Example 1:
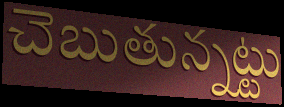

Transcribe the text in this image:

చెబుతున్నట్టు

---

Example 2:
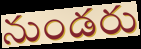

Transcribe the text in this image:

నుండరు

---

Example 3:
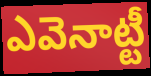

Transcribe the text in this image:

ఎవెనాట్టీ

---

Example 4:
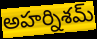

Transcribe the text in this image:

అహర్నిశమ్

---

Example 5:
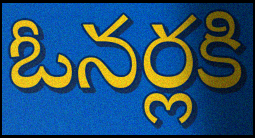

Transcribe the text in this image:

ఓనర్లకి